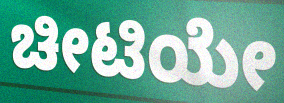
ಚೀಟಿಯೇ